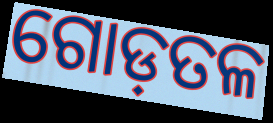
ଗୋଡ଼ତଳ